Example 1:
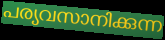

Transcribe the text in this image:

പര്യവസാനിക്കുന്ന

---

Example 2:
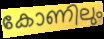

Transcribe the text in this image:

കോണിലും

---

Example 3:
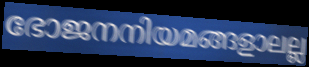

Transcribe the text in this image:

ഭോജനനിയമങ്ങളാലല്ല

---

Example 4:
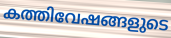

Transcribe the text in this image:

കത്തിവേഷങ്ങളുടെ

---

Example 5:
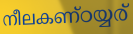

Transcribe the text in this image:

നീലകണ്ഠയ്യര്